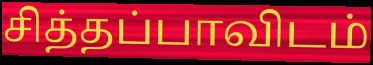
சித்தப்பாவிடம்